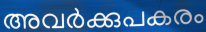
അവർക്കുപകരം